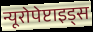
न्यूरोपेप्टाइड्स